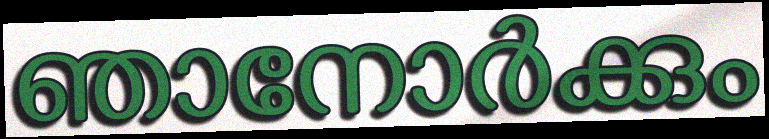
ഞാനോർക്കും